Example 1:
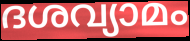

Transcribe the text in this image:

ദശവ്യാമം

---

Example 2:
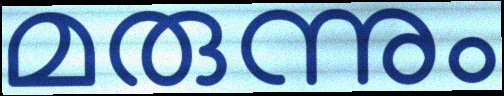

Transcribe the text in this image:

മരുന്നും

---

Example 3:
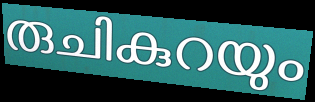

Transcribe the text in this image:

രുചികുറയും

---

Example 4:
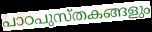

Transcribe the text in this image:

പാഠപുസ്തകങ്ങളും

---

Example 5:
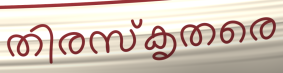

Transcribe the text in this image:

തിരസ്കൃതരെ